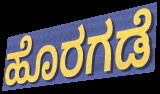
ಹೊರಗಡೆ